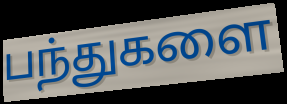
பந்துகளை